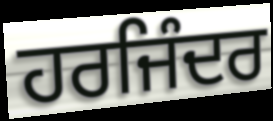
ਹਰਜਿੰਦਰ